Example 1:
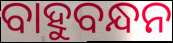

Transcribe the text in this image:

ବାହୁବନ୍ଧନ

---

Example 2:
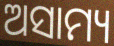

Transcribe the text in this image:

ଅସାମ୍ୟ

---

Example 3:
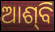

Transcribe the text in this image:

ଆଶ୍‍ବି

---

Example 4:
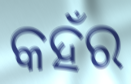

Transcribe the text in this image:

କହଁର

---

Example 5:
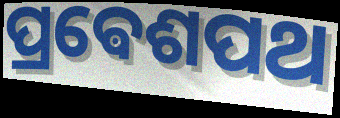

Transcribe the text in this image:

ପ୍ରଵେଶପଥ